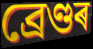
ব্ৰেণ্ডৰ